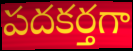
పదకర్తగా